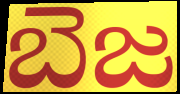
బెజ